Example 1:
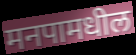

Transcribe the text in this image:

मनपामधील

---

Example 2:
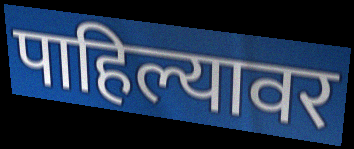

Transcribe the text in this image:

पाहिल्‍यावर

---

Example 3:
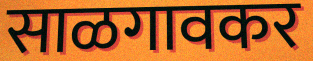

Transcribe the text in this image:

साळगावकर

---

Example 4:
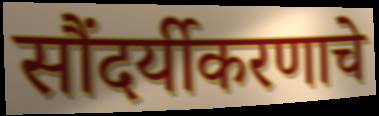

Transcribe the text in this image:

सौंदर्यीकरणाचे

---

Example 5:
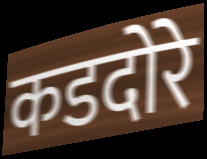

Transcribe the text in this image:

कडदोरे